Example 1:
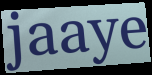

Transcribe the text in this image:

jaaye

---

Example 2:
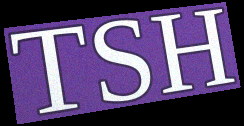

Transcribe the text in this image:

TSH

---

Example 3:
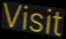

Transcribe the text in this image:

Visit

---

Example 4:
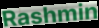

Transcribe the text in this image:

Rashmin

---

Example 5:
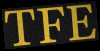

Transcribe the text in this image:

TFE